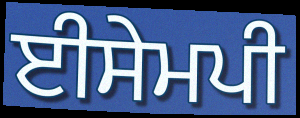
ਈਸੇਮਪੀ